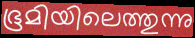
ഭൂമിയിലെത്തുന്നു